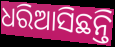
ଧରିଆସିଛନ୍ତି